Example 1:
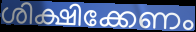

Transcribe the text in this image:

ശിക്ഷിക്കേണം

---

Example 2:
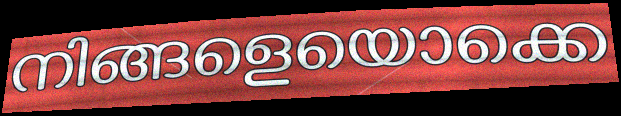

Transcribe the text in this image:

നിങ്ങളെയൊക്കെ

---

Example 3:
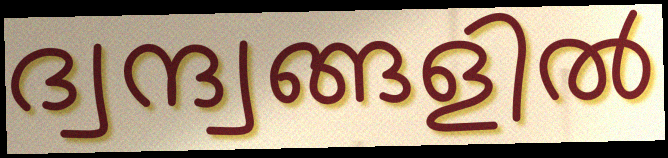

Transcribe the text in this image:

ദ്വന്ദ്വങ്ങളിൽ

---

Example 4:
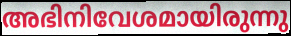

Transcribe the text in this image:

അഭിനിവേശമായിരുന്നു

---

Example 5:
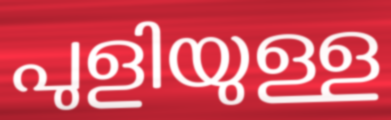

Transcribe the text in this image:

പുളിയുള്ള